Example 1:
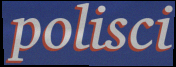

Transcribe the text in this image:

polisci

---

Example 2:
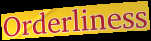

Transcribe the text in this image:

Orderliness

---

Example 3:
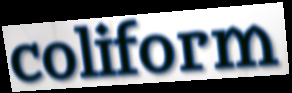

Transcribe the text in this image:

coliform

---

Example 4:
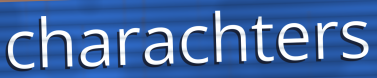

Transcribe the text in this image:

charachters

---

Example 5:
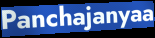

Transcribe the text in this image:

Panchajanyaa